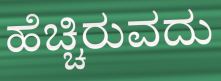
ಹೆಚ್ಚಿರುವದು